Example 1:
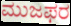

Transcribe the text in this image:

ಮುಜಫರ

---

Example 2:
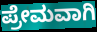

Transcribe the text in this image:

ಪ್ರೇಮವಾಗಿ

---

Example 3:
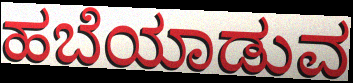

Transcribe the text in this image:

ಹಬೆಯಾಡುವ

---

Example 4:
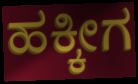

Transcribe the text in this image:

ಹಕ್ಕೀಗ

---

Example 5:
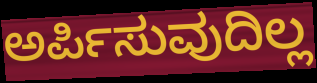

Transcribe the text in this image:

ಅರ್ಪಿಸುವುದಿಲ್ಲ